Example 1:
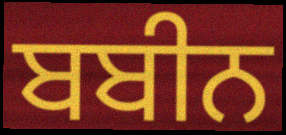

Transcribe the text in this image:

ਬਬੀਨ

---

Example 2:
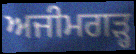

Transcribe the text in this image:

ਅਜੀਮਗੜ੍ਹ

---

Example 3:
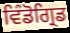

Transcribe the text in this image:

ਵਿੰਡੋਗ੍ਰਿਡ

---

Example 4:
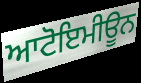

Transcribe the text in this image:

ਆਟੋਇਮੀਊਨ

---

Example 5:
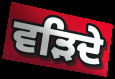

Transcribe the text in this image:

ਵੜਿਦੇ